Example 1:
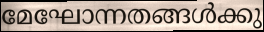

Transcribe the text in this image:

മേഘോന്നതങ്ങൾക്കു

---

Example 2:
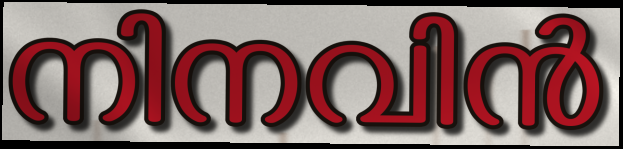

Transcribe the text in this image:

നിനവിൻ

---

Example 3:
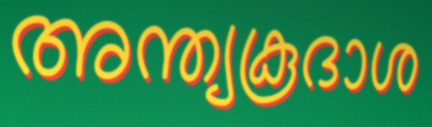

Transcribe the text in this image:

അന്ത്യകൂദാശ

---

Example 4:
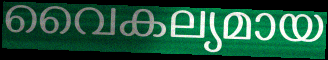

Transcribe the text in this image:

വൈകല്യമായ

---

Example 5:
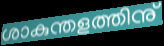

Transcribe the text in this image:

ശാകുന്തളത്തിനു്